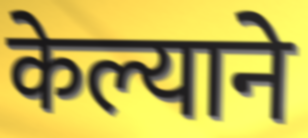
केल्‍याने